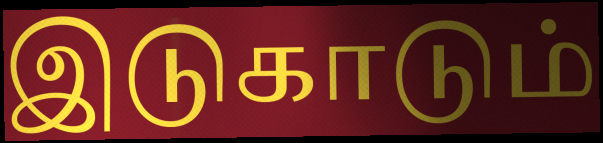
இடுகாடும்